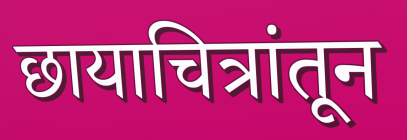
छायाचित्रांतून